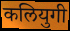
कलियुगी